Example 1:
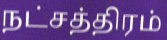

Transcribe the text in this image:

நட்சத்திரம்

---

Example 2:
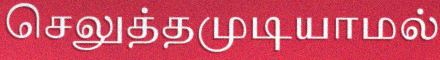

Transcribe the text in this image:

செலுத்தமுடியாமல்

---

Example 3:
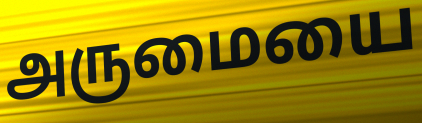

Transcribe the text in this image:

அருமையை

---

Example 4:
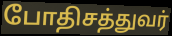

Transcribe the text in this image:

போதிசத்துவர்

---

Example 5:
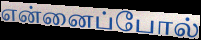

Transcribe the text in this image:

என்னைப்போல்